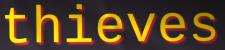
thieves